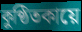
কুণ্ঠিতকায়ে